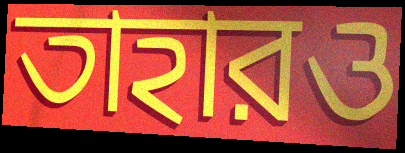
তাহারও